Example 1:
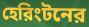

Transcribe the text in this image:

হেরিংটনের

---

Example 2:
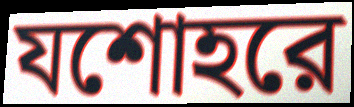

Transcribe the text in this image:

যশোহরে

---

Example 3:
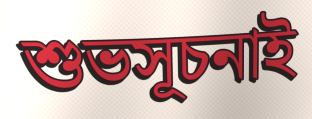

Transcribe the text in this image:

শুভসূচনাই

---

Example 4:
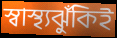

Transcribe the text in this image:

স্বাস্থ্যঝুঁকিই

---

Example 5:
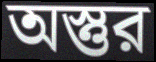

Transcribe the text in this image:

অস্তুর